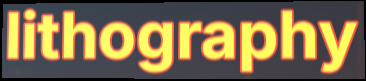
lithography